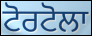
ਟੋਰਟੋਲਾ